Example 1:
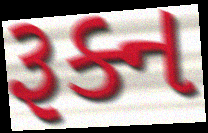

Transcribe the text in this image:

રૂક્ન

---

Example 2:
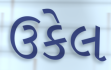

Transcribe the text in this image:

ઉકેલ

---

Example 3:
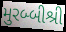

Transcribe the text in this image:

મુરબ્બીશ્રી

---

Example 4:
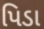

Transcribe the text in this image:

પિડા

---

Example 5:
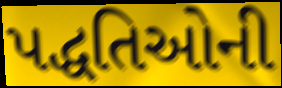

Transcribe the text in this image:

પદ્ધતિઓની